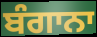
ਬੰਗਾਨਾ